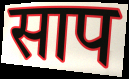
साप